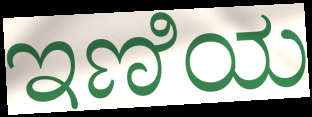
ಇಣಿಯ